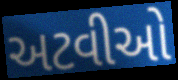
અટવીઓ